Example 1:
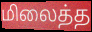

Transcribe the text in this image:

மிலைத்த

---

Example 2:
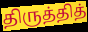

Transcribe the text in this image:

திருத்தித்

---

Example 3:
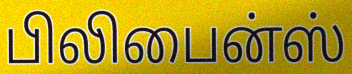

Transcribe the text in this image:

பிலிபைன்ஸ்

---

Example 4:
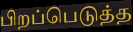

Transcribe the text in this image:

பிறப்பெடுத்த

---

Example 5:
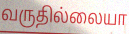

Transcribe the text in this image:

வருதில்லையா